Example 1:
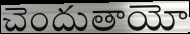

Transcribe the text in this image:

చెందుతాయో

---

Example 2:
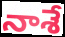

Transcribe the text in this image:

నాశే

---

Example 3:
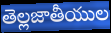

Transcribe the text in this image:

తెల్లజాతీయుల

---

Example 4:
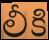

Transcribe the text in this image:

లీకి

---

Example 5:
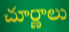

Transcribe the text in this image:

చూర్ణాలు